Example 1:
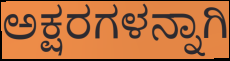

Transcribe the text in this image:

ಅಕ್ಷರಗಳನ್ನಾಗಿ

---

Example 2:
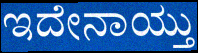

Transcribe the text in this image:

ಇದೇನಾಯ್ತು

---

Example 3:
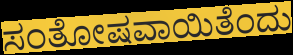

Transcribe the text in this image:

ಸಂತೋಷವಾಯಿತೆಂದು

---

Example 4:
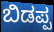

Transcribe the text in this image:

ಬಿಡಪ್ಪ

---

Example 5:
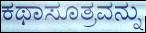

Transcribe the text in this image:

ಕಥಾಸೂತ್ರವನ್ನು